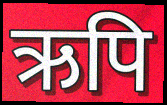
ऋपि